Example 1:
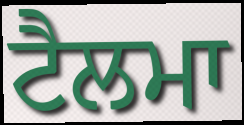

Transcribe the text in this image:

ਟੈਲਮਾ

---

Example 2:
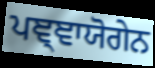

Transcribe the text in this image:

ਪਞ੍ਞਾਯੋਗੇਨ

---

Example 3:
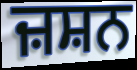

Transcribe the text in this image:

ਜ਼ਸ਼ਨ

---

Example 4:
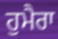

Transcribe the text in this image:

ਹੁਮੈਰਾ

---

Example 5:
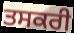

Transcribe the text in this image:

ਤਸਕਰੀ